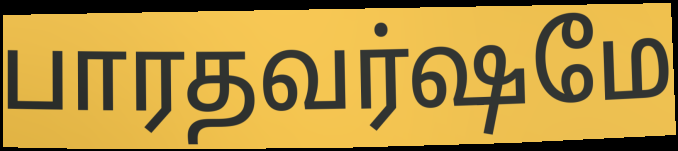
பாரதவர்ஷமே